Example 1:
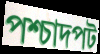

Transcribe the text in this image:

পশ্চাদপট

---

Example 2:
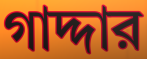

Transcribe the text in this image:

গাদ্দার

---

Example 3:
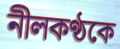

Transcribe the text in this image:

নীলকণ্ঠকে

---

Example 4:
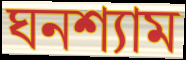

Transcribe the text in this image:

ঘনশ্যাম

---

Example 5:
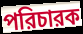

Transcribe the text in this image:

পরিচারক